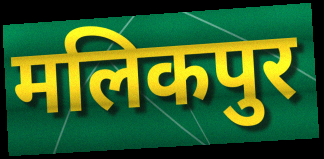
मलिकपुर